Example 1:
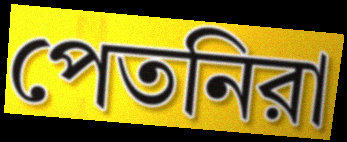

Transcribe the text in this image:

পেতনিরা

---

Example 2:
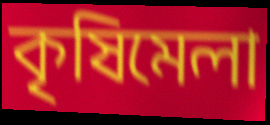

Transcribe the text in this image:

কৃষিমেলা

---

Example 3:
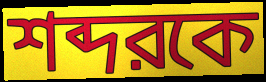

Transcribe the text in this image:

শব্দরকে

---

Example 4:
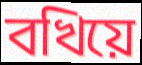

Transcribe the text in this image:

বখিয়ে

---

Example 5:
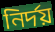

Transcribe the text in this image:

নির্দয়